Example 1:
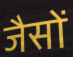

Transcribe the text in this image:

जैसों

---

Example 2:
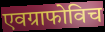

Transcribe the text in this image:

एवग्राफोविच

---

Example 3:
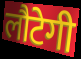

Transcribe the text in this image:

लौटेगी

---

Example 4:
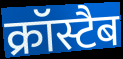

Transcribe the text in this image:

क्रॉस्टैब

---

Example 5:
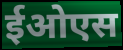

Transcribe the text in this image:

ईओएस